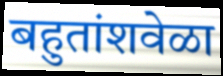
बहुतांशवेळा